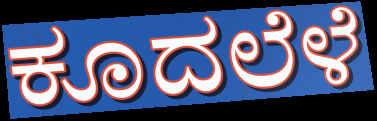
ಕೂದಲೆಳೆ